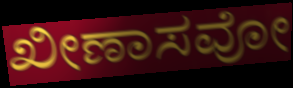
ಖೀಣಾಸವೋ